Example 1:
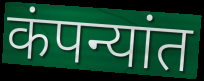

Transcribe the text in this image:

कंपन्यांत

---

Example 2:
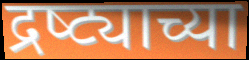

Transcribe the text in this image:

द्रष्ट्याच्या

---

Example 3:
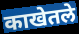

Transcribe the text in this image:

काखेतले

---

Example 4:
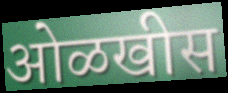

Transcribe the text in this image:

ओळखीस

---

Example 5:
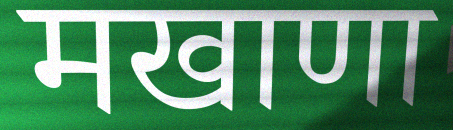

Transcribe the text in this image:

मखाणा